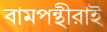
বামপন্থীরাই